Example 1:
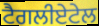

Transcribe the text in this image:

ਟੈਗਲੀਏਟੇਲ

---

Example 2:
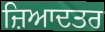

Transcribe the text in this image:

ਜ਼ਿਆਦਤਰ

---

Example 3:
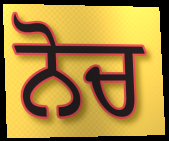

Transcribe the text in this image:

ਨੋਚ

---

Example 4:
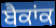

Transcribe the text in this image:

ਬੈਕਾਂਕ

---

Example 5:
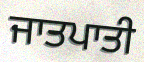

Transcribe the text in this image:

ਜਾਤਪਾਤੀ